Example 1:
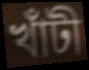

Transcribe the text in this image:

খাঁটী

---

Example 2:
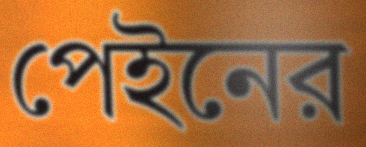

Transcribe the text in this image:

পেইনের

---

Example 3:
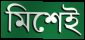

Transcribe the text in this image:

মিশেই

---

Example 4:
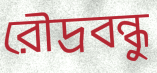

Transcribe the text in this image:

রৌদ্রবন্ধু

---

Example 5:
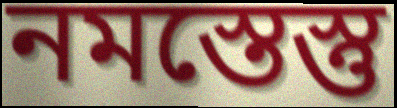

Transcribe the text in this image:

নমস্তেস্তু